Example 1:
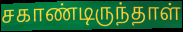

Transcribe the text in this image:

சகாண்டிருந்தாள்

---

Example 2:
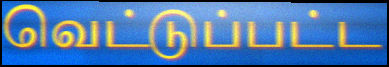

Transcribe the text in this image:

வெட்டுப்பட்ட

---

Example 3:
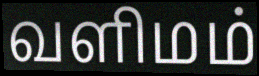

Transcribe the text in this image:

வளிமம்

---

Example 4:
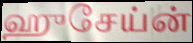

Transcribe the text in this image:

ஹுசேய்ன்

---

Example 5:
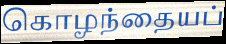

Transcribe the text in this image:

கொழந்தையப்